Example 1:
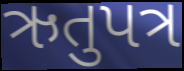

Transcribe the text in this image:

ઋતુપત્ર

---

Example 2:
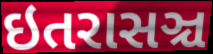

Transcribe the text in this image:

ઇતરાસઞ્ચ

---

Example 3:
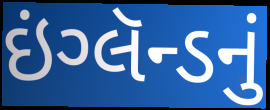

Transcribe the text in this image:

ઇંગ્લૅન્ડનું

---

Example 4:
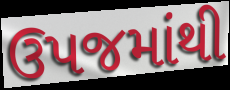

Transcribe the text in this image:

ઉપજમાંથી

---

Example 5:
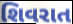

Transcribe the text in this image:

શિવરાત